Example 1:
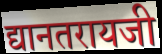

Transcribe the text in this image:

द्यानतरायजी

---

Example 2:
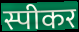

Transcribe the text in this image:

स्‍पीकर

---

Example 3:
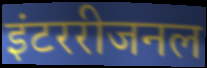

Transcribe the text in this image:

इंटररीजनल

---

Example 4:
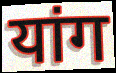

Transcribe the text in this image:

यांग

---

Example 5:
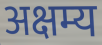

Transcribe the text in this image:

अक्षम्‍य